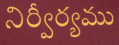
నిర్వీర్యము